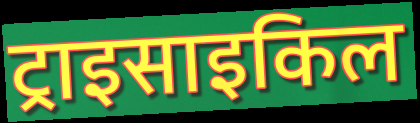
ट्राइसाइकिल